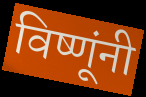
विष्णूंनी